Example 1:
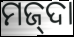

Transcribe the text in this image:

ମଜ୍‌ଦା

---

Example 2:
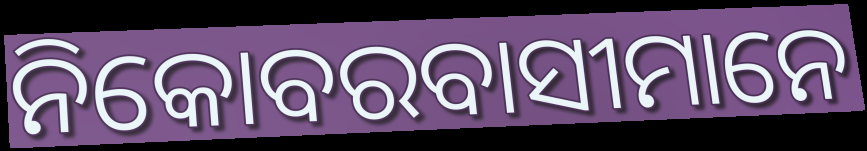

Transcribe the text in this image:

ନିକୋବରବାସୀମାନେ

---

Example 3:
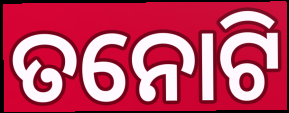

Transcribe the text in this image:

ତନୋଟି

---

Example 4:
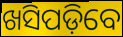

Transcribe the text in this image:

ଖସିପଡ଼ିବେ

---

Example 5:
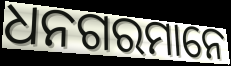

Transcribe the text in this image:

ଧନଗରମାନେ